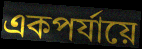
একপর্যায়ে